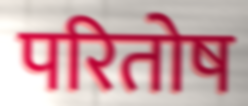
परितोष